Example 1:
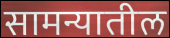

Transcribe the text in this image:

सामन्यातील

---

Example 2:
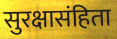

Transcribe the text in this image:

सुरक्षासंहिता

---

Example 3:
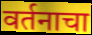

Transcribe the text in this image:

वर्तनाचा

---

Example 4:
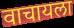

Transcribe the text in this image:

वाचायला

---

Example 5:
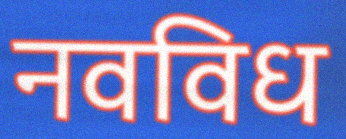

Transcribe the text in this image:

नवविध